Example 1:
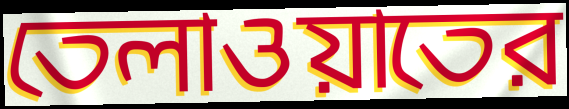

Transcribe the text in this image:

তেলাওয়াতের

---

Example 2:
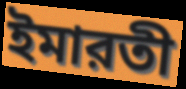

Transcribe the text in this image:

ইমারতী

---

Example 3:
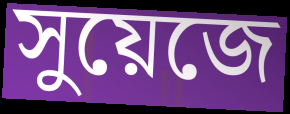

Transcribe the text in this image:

সুয়েজে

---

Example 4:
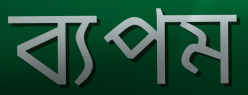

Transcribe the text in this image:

ব্যপম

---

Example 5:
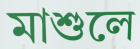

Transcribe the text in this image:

মাশুলে